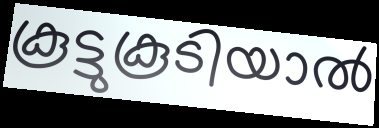
കൂട്ടുകൂടിയാൽ